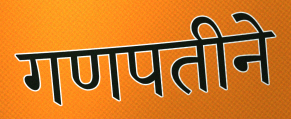
गणपतीने